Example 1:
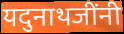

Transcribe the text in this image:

यदुनाथजींनी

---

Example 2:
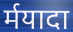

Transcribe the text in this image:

र्मयादा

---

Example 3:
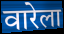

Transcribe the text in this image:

वारेला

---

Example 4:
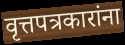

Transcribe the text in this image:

वृत्तपत्रकारांना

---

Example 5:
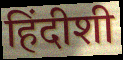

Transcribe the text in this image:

हिंदीशी